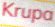
Krupa